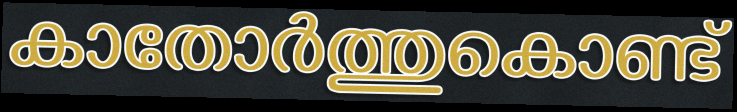
കാതോർത്തുകൊണ്ട്